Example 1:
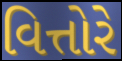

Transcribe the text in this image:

વિત્તોરે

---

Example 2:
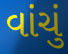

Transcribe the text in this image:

વાંચું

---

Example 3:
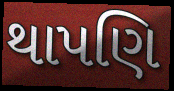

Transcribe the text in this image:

થાપણિ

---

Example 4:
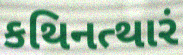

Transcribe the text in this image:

કથિનત્થારં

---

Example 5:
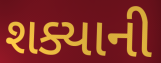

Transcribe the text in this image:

શક્યાની